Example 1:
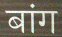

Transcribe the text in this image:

बांग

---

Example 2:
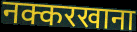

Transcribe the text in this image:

नक्करखाना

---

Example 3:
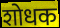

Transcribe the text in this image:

शोधक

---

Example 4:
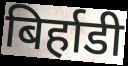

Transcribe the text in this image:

बिर्हाडी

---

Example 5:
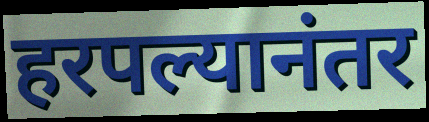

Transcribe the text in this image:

हरपल्यानंतर